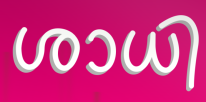
ശാധി